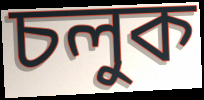
চলুক